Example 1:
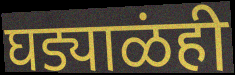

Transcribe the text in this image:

घड्याळंही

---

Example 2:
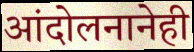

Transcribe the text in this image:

आंदोलनानेही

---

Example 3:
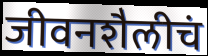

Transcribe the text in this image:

जीवनशैलीचं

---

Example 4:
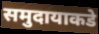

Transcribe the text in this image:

समुदायाकडे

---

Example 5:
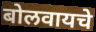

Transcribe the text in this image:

बोलवायचे